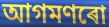
আগমণৰো